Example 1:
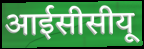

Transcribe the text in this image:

आईसीसीयू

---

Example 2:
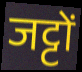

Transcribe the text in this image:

जट्टों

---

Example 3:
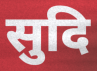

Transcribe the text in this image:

सुदि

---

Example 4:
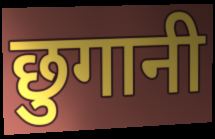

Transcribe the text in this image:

छुगानी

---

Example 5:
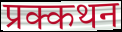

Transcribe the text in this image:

प्रक्कथन